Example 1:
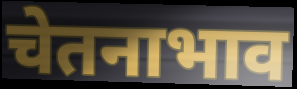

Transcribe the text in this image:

चेतनाभाव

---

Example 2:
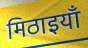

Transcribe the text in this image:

मिठाइयाँ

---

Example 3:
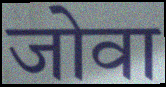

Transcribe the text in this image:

जोवा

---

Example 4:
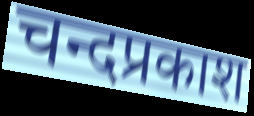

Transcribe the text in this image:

चन्दप्रकाश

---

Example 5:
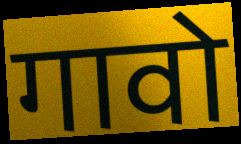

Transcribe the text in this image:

गावो